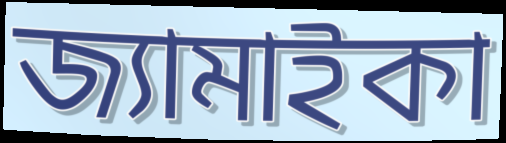
জ্যামাইকা